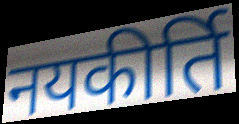
नयकीर्ति